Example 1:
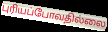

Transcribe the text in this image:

புரியப்போவதில்லை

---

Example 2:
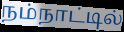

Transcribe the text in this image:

நம்நாட்டில்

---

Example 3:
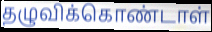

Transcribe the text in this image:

தழுவிக்கொண்டாள்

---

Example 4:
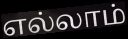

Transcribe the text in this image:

எல்லாம்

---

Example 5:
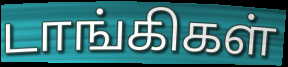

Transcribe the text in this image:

டாங்கிகள்